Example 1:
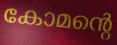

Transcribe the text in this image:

കോമന്റെ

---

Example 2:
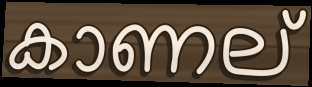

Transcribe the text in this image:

കാണല്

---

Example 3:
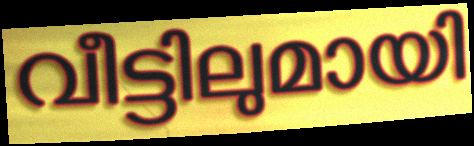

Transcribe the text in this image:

വീട്ടിലുമായി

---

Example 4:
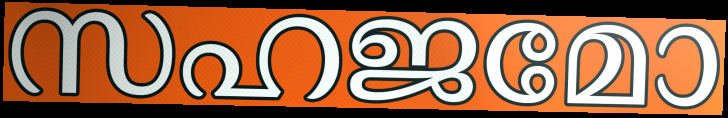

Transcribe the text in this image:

സഹജമോ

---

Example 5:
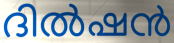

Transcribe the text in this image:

ദിൽഷൻ